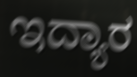
ಇದ್ಯಾರ